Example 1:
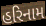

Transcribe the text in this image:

હરિનામ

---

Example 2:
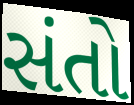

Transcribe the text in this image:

સંતો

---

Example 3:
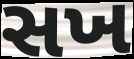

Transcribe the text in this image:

સખ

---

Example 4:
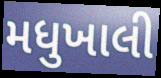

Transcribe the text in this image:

મધુખાલી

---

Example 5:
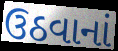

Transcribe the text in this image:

ઉઠવાનાં